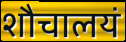
शौचालयं